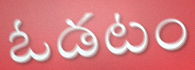
ఓడటం